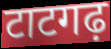
टाटगढ़